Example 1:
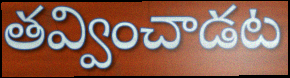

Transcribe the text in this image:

తవ్వించాడట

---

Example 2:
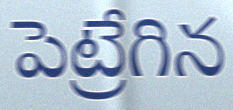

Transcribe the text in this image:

పెట్రేగిన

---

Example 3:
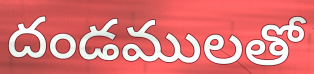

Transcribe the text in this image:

దండములతో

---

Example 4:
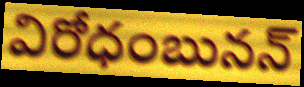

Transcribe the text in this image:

విరోధంబునన్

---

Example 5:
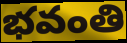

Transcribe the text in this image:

భవంతి